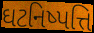
ઘટનિષ્પત્તિ